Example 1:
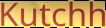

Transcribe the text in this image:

Kutchh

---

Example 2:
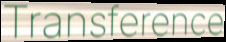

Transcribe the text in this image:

Transference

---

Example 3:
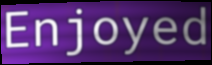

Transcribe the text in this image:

Enjoyed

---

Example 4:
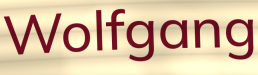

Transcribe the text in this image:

Wolfgang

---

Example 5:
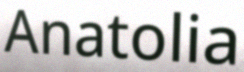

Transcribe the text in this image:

Anatolia